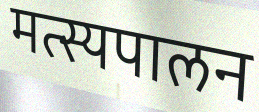
मत्स्यपालन